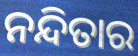
ନନ୍ଦିତାର